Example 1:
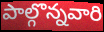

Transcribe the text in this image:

పాల్గొన్నవారి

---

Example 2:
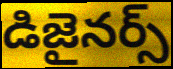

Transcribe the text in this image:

డిజైనర్స్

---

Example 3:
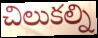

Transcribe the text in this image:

చిలుకల్ని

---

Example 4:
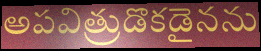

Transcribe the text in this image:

అపవిత్రుడొకడైనను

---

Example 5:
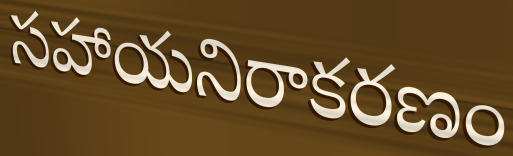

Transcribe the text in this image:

సహాయనిరాకరణం